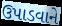
ઉપાડવાને